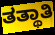
ತತ್ಥಾತಿ